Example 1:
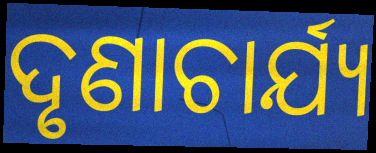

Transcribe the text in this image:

ଦୃଣାଚାର୍ଯ୍ୟ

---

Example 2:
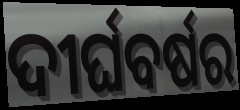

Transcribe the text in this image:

ଦୀର୍ଘବର୍ଷର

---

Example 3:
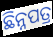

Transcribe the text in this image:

ଛିନ୍ନପତ୍ର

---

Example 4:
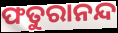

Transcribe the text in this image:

ଫତୁରାନନ୍ଦ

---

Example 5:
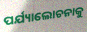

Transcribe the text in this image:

ପର୍ଯ୍ୟାଲୋଚନାକୁ